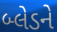
બ્લેડને